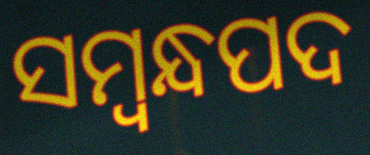
ସମ୍ବନ୍ଧପଦ